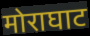
मोराघाट